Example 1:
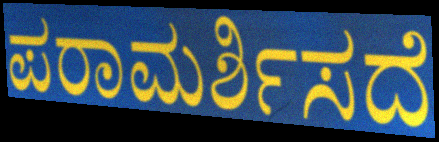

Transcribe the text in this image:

ಪರಾಮರ್ಶಿಸದೆ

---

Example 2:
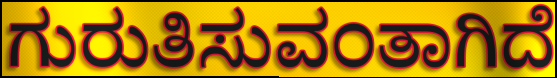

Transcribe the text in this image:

ಗುರುತಿಸುವಂತಾಗಿದೆ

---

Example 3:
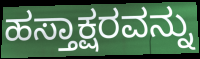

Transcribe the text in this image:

ಹಸ್ತಾಕ್ಷರವನ್ನು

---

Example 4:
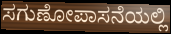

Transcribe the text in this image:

ಸಗುಣೋಪಾಸನೆಯಲ್ಲಿ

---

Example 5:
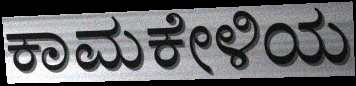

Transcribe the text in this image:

ಕಾಮಕೇಳಿಯ